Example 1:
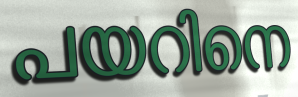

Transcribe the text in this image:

പയറിനെ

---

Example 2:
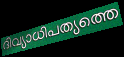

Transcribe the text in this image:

ദിവ്യാധിപത്യത്തെ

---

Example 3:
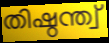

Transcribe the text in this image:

തിഷ്ഠന്ത്വ്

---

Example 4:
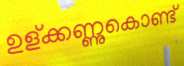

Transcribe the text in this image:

ഉള്ക്കണ്ണുകൊണ്ട്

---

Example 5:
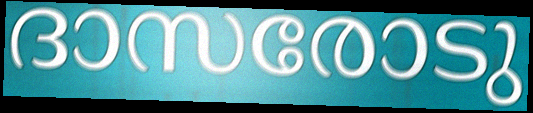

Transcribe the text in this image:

ദാസരോടു